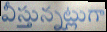
వీస్తున్నట్లుగా